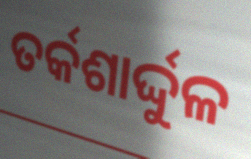
ତର୍କଶାର୍ଦ୍ଦୁଳ